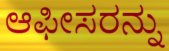
ಆಫೀಸರನ್ನು